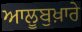
ਆਲੂਬੁਖ਼ਾਰੇ